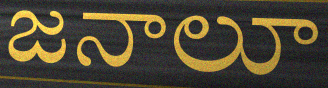
జనాలూ